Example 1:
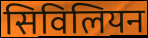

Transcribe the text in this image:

सिविलियन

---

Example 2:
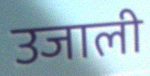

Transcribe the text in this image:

उजाली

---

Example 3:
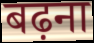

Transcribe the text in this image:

बढ़ना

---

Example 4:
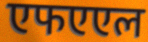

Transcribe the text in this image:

एफएएल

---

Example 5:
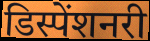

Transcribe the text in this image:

डिस्पेंशनरी